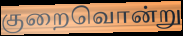
குறைவொன்று